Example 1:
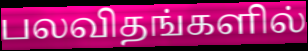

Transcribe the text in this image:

பலவிதங்களில்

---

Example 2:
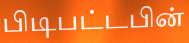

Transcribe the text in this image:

பிடிபட்டபின்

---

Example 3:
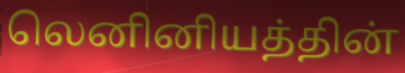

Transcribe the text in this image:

லெனினியத்தின்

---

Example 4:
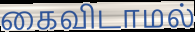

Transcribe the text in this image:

கைவிடாமல்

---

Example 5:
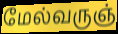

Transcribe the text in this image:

மேல்வருஞ்